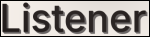
Listener